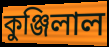
কুঞ্জিলাল